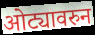
ओट्यावरुन